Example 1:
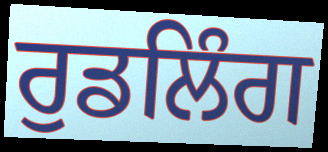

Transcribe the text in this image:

ਰੁਡਲਿੰਗ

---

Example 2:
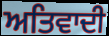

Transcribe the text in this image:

ਅਤਿਵਾਦੀ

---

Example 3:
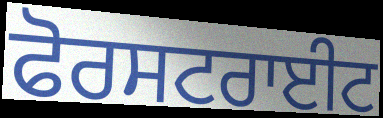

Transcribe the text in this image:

ਫੋਰਸਟਰਾਈਟ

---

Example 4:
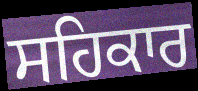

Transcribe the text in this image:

ਸਹਿਕਾਰ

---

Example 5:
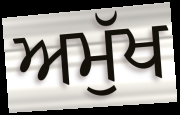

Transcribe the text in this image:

ਅਮੁੱਖ